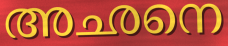
അഛനെ